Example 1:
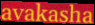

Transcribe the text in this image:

avakasha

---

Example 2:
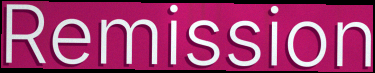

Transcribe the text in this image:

Remission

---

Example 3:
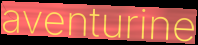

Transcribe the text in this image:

aventurine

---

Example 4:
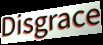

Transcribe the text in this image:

Disgrace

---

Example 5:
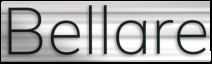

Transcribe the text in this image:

Bellare